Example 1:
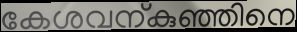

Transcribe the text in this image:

കേശവന്കുഞ്ഞിനെ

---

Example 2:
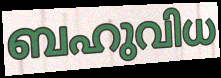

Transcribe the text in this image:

ബഹുവിധ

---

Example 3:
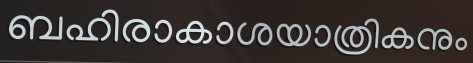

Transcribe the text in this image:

ബഹിരാകാശയാത്രികനും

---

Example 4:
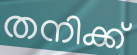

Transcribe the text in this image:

തനിക്ക്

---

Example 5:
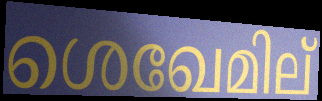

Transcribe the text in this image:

ശെഖേമില്